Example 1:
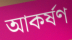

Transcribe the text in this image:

আকৰ্ষণ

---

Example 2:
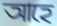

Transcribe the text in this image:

আহে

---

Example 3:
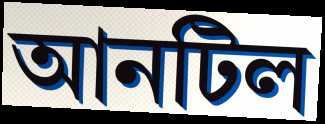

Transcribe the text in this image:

আনটিল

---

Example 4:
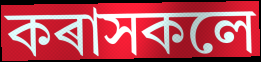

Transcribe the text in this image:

কৰাসকলে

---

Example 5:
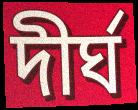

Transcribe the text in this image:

দীৰ্ঘ